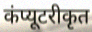
कंप्यूटरीकृत